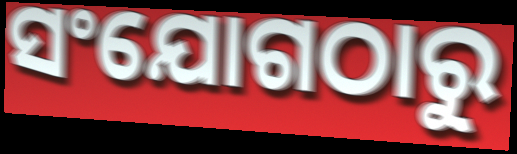
ସଂଯୋଗଠାରୁ